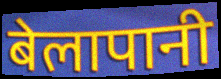
बेलापानी